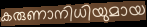
കരുണാനിധിയുമായ